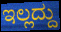
ಇಲ್ಲದ್ದು